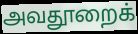
அவதூறைக்